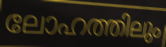
ലോഹത്തിലും